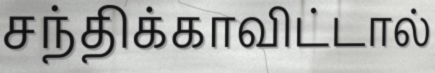
சந்திக்காவிட்டால்